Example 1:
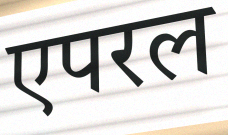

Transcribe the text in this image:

एपरल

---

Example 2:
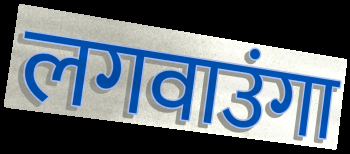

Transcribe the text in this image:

लगवाउंगा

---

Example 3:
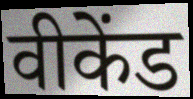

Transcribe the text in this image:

वीकेंड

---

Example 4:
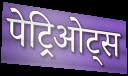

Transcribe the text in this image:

पेट्रिओट्स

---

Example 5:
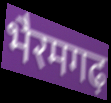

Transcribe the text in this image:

भैरमगढ़